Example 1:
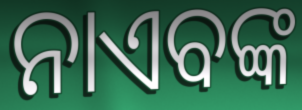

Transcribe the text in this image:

ନାଏବଙ୍କ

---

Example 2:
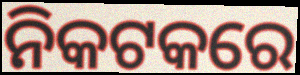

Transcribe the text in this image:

ନିକଟକରେ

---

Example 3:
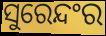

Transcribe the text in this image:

ସୁରେନ୍ଦଂର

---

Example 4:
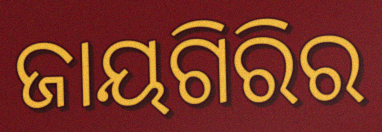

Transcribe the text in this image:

ଜାୟଗିରିର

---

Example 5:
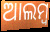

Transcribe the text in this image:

ଆଲମ୍ବ